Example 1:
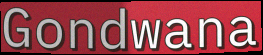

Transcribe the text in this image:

Gondwana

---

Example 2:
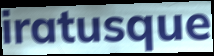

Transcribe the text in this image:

iratusque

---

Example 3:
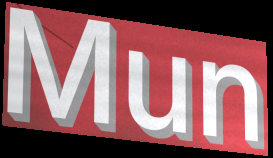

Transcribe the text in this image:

Mun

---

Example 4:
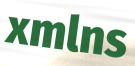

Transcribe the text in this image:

xmlns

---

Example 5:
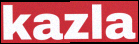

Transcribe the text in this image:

kazla